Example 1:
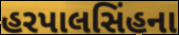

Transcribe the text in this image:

હરપાલસિંહના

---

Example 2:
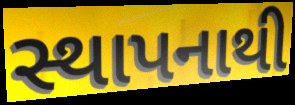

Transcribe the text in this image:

સ્થાપનાથી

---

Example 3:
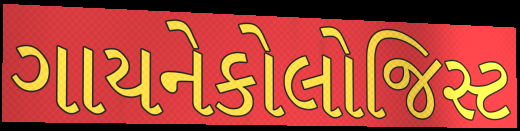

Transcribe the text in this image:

ગાયનેકોલોજિસ્ટ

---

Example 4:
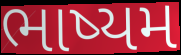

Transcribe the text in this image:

ભાષ્યમ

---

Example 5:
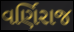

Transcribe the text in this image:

વર્ણિરાજ